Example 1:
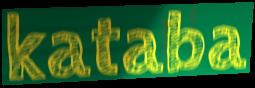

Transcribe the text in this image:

kataba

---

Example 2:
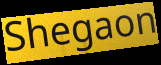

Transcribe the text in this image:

Shegaon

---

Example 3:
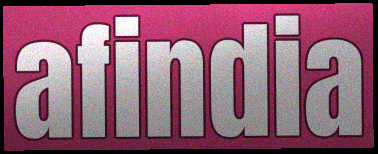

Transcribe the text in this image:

afindia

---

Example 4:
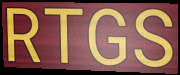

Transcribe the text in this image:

RTGS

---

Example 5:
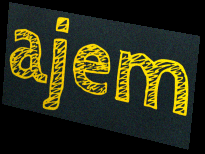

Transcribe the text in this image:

ajem